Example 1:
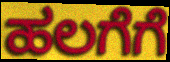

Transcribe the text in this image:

ಹಲಗೆಗೆ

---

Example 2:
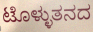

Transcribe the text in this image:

ಟೊಳ್ಳುತನದ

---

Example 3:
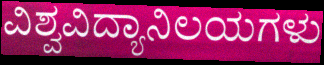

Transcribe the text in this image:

ವಿಶ್ವವಿದ್ಯಾನಿಲಯಗಳು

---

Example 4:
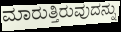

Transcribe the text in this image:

ಮಾರುತ್ತಿರುವುದನ್ನು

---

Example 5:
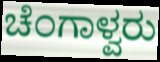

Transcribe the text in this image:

ಚೆಂಗಾಳ್ವರು